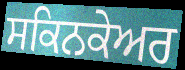
ਸਕਿਨਕੇਅਰ